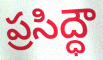
ప్రసిద్ధౌ